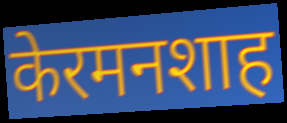
केरमनशाह